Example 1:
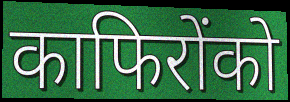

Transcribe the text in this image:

काफिरोंको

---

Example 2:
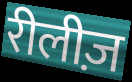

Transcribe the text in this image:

रीलीज़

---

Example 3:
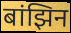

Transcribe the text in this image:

बांझिन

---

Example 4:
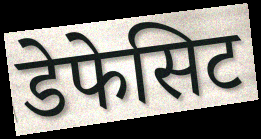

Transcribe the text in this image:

डेफेसिट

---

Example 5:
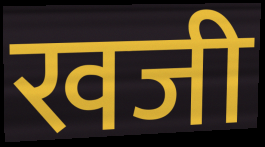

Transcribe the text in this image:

खजी